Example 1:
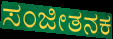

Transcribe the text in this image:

ಸಂಜೀತನಕ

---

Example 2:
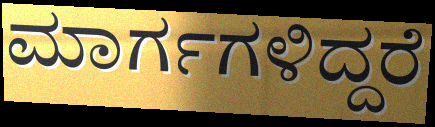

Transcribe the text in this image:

ಮಾರ್ಗಗಳಿದ್ದರೆ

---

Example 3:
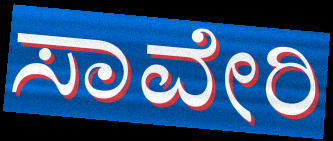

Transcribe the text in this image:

ಸಾವೇರಿ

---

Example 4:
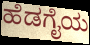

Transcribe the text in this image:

ಹೆಡಗೈಯ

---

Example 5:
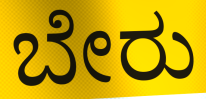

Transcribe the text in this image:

ಬೇರು